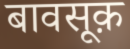
बावसूक़